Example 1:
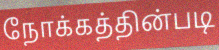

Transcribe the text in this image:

நோக்கத்தின்படி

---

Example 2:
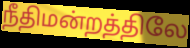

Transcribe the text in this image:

நீதிமன்றத்திலே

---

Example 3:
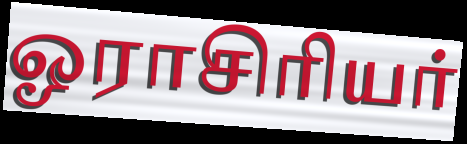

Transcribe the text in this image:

ஓராசிரியர்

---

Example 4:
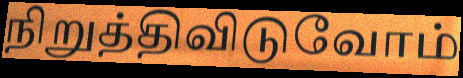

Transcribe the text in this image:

நிறுத்திவிடுவோம்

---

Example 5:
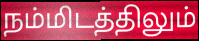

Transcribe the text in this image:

நம்மிடத்திலும்